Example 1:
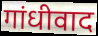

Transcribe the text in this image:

गांधीवाद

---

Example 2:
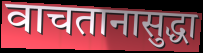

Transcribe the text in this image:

वाचतानासुद्धा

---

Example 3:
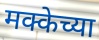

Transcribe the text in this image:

मक्केच्या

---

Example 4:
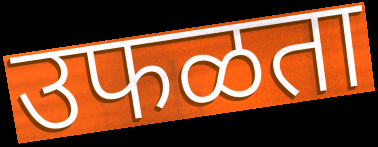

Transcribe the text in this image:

उफळता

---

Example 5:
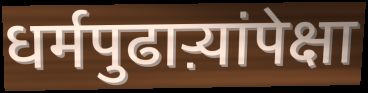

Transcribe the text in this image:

धर्मपुढाऱ्‍यांपेक्षा